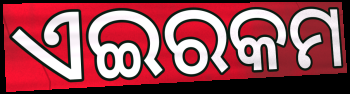
ଏଇରକମ